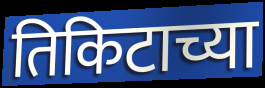
तिकिटाच्या